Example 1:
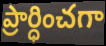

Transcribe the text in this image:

ప్రార్ధించగా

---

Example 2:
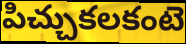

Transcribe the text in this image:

పిచ్చుకలకంటె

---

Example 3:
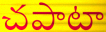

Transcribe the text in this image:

చపాటా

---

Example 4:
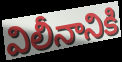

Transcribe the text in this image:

విలీనానికి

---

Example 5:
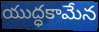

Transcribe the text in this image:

యుద్ధకామేన